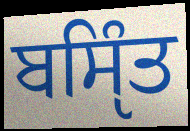
ਬਸੵਿੰਤ